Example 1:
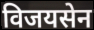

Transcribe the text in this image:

विजयसेन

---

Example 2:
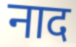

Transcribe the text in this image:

नाद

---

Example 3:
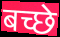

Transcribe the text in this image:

बच्छे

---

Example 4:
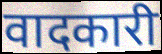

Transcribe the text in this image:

वादकारी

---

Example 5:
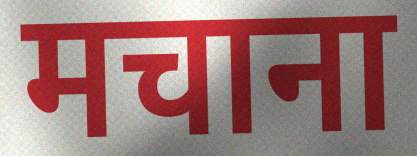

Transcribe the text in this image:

मचाना